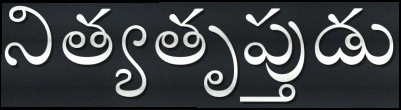
నిత్యతృప్తుడు